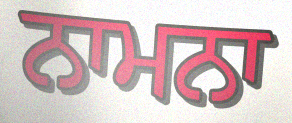
ਨਾਮਨਾ